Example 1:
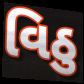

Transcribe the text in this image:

વિઠુ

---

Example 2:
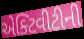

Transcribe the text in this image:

એક્ટિવીટીની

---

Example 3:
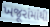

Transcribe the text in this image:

ખજૂરાંમાંથી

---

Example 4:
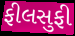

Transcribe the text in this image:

ફીલસુફી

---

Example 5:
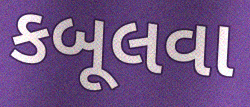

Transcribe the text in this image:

કબૂલવા